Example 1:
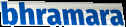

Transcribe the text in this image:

bhramara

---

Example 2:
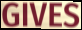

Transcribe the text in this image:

GIVES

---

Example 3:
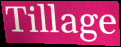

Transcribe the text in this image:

Tillage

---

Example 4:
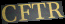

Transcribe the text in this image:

CFTR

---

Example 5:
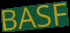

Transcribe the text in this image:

BASF